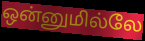
ஒன்னுமில்லே